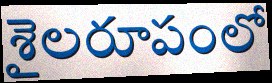
శైలరూపంలో